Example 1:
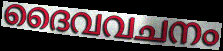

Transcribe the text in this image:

ദൈവവചനം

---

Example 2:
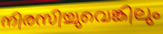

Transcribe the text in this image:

നിരസിച്ചുവെങ്കിലും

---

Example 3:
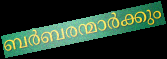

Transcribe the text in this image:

ബർബരന്മാർക്കും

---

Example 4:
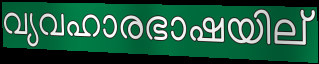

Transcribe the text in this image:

വ്യവഹാരഭാഷയില്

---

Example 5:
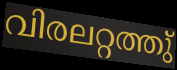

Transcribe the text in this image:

വിരലറ്റത്തു്